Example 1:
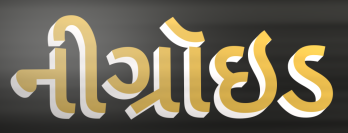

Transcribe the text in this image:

નીગ્રૉઇડ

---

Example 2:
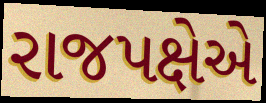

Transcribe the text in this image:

રાજપક્ષેએ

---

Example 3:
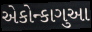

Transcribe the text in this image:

એકોન્કાગુઆ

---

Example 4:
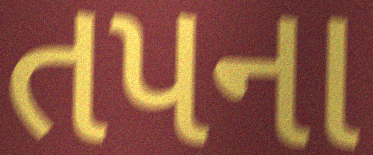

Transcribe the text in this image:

તપના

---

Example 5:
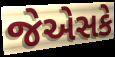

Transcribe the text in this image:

જેએસકે